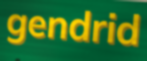
gendrid